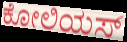
ಕೋಲಿಯಸ್